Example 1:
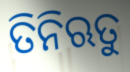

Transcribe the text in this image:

ତିନିଋତୁ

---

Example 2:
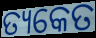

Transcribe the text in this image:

ତ୍ୟକେତ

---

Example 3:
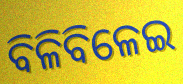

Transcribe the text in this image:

ବିଳିବିଳେଇ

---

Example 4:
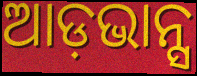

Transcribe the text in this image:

ଆଡ଼ଭାନ୍ସ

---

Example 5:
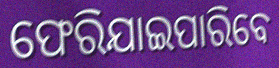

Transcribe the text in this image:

ଫେରିଯାଇପାରିବେ